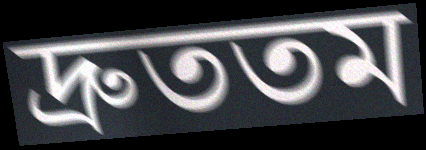
দ্রুততম